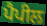
ਪੈਪੀਲ